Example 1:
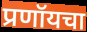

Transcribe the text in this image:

प्रणॉयचा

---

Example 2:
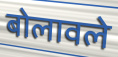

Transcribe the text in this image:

बोलावले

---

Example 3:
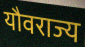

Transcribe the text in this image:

यौवराज्य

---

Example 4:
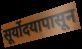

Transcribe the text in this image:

सूर्योदयापासून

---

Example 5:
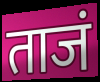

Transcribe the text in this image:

ताजं